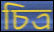
চিত্ৰ